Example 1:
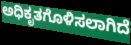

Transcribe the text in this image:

ಅಧಿಕೃತಗೊಳಿಸಲಾಗಿದೆ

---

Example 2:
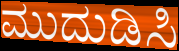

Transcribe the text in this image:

ಮುದುಡಿಸಿ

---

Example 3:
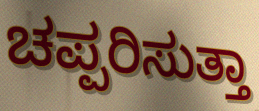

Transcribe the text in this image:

ಚಪ್ಪರಿಸುತ್ತಾ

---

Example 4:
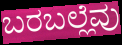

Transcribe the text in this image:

ಬರಬಲ್ಲೆವು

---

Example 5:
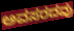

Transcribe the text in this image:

ಅವಸರದವು